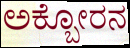
ಅಕ್ಬೋರನ